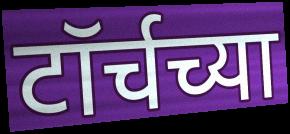
टॉर्चच्या